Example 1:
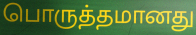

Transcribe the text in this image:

பொருத்தமானது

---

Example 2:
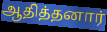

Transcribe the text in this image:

ஆதித்தனார்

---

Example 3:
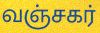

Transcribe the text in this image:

வஞ்சகர்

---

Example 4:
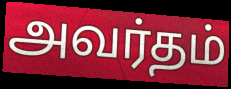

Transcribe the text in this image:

அவர்தம்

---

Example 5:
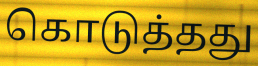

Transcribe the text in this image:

கொடுத்தது